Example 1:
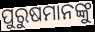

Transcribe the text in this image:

ପୁରୁଷମାନଙ୍କୁ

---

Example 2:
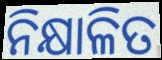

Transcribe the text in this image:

ନିକ୍ଷାଳିତ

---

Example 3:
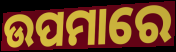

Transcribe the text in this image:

ଉପମାରେ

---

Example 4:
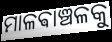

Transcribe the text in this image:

ମାଳଵାଞ୍ଚଳକୁ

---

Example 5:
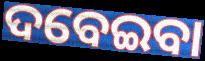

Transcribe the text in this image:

ଦବେଇବା